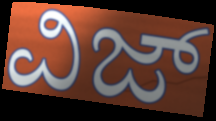
ವಿಜ್